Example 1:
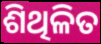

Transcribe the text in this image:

ଶିଥିଳିତ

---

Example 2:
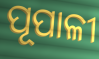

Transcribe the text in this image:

ପୂପାଳୀ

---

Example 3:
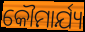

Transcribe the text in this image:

କୌମାର୍ଯ୍ୟ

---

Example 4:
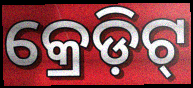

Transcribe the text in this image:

କ୍ରେଡ଼ିଟ୍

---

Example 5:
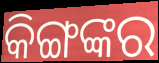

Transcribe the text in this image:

କିଙ୍ଗଙ୍କର